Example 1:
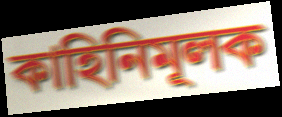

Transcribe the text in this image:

কাহিনিমূলক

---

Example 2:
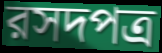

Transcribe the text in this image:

রসদপত্র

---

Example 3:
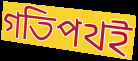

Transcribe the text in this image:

গতিপথই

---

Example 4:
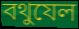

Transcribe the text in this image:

বথুযেল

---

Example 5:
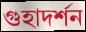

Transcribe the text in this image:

গুহাদর্শন